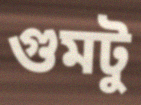
গুমটু